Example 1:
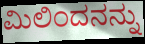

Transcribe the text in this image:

ಮಿಲಿಂದನನ್ನು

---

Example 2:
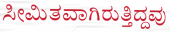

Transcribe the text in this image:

ಸೀಮಿತವಾಗಿರುತ್ತಿದ್ದವು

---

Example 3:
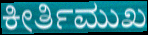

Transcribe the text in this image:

ಕೀರ್ತಿಮುಖ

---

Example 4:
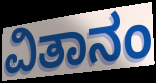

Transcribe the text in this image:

ವಿತಾನಂ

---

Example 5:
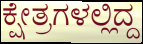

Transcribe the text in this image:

ಕ್ಷೇತ್ರಗಳಲ್ಲಿದ್ದ